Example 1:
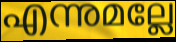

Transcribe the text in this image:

എന്നുമല്ലേ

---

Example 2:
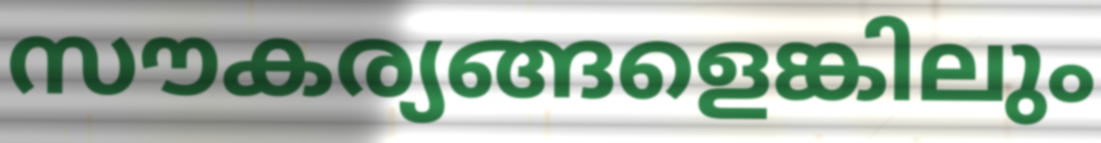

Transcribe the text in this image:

സൗകര്യങ്ങളെങ്കിലും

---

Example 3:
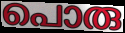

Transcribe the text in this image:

പൊരു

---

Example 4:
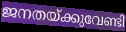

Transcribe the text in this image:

ജനതയ്ക്കുവേണ്ടി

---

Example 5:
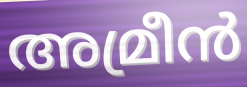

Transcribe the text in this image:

അമ്രീൻ